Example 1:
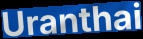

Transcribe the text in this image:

Uranthai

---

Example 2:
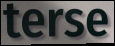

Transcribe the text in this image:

terse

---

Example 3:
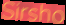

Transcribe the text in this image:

Sirsho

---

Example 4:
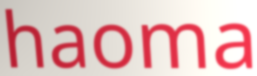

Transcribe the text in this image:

haoma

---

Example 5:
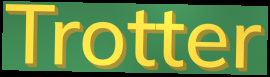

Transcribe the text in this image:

Trotter